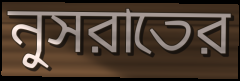
নুসরাতের